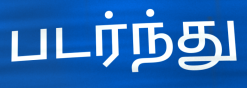
படர்ந்து